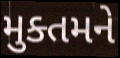
મુક્તમને